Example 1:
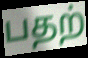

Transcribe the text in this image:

பதற்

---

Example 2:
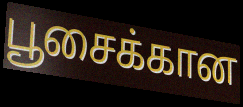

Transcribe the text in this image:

பூசைக்கான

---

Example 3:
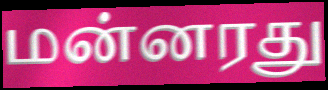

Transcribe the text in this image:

மன்னரது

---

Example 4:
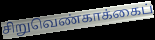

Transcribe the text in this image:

சிறுவெண்காக்கைப்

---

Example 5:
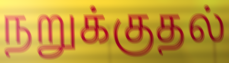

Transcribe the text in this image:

நறுக்குதல்